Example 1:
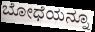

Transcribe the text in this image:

ಬೋಧೆಯನ್ನೂ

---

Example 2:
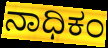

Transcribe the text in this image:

ನಾಧಿಕಂ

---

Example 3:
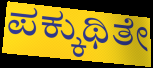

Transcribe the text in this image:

ಪಕ್ಕುಥಿತೇ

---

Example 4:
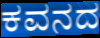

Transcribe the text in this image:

ಕವನದ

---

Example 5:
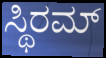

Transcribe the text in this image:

ಸ್ಥಿರಮ್